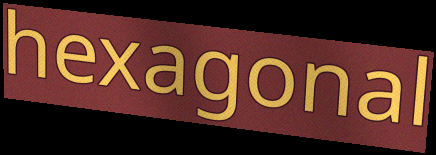
hexagonal